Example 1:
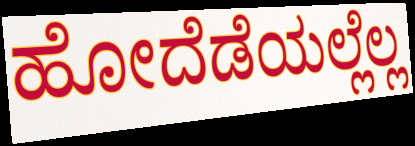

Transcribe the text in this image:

ಹೋದೆಡೆಯಲ್ಲೆಲ್ಲ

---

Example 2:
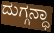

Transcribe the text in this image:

ದುಗ್ಗನ್ಧಾ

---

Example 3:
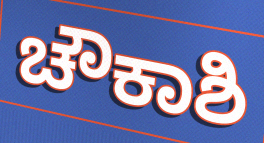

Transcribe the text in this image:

ಚೌಕಾಶಿ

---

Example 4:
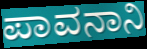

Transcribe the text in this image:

ಪಾವನಾನಿ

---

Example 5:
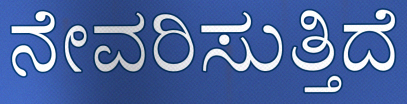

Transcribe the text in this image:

ನೇವರಿಸುತ್ತಿದೆ